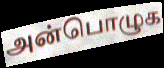
அன்பொழுக